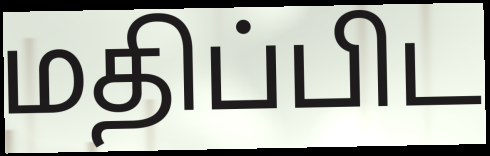
மதிப்பிட